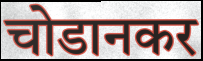
चोडानकर